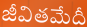
జీవితమేదీ